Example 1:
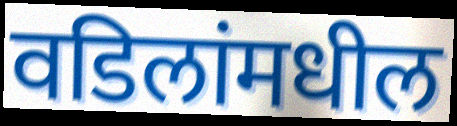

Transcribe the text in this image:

वडिलांमधील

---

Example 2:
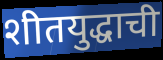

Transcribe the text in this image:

शीतयुद्धाची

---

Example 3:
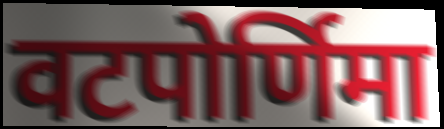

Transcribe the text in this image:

वटपोर्णिमा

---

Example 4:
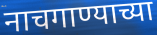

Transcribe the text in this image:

नाचगाण्याच्या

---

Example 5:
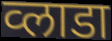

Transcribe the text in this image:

व्लाडा